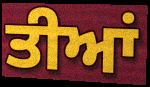
ਤੀਆਂ